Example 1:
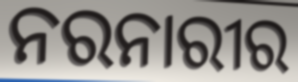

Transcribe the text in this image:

ନରନାରୀର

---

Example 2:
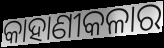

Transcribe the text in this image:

କାହାଣୀକଳାର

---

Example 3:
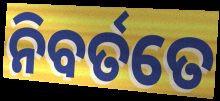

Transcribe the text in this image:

ନିବର୍ତତେ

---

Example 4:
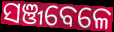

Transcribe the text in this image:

ସଞ୍ଜବେଳେ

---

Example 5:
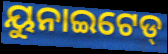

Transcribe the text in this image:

ୟୁନାଇଟେଡ୍